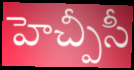
హెచ్పీసీ